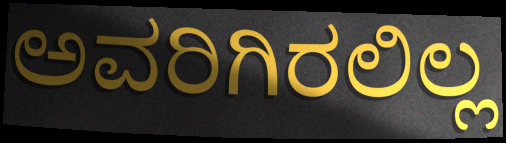
ಅವರಿಗಿರಲಿಲ್ಲ